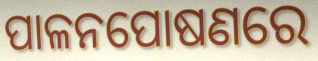
ପାଳନପୋଷଣରେ